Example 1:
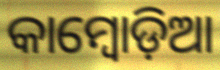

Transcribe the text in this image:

କାମ୍ବୋଡ଼ିଆ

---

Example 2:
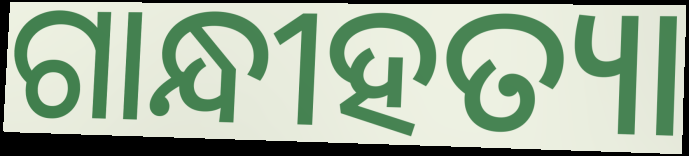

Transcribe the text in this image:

ଗାନ୍ଧୀହତ୍ୟା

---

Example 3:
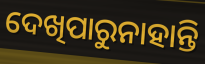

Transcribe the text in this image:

ଦେଖିପାରୁନାହାନ୍ତି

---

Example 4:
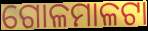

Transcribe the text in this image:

ଗୋଳମାଳଟା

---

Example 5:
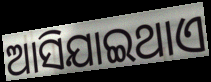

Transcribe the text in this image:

ଆସିଯାଇଥାଏ